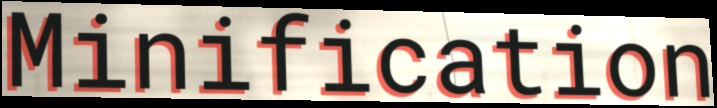
Minification